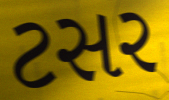
ટસર